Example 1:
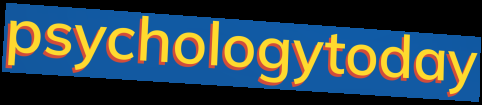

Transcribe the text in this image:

psychologytoday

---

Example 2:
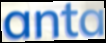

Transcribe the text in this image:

anta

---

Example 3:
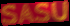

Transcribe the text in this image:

SASU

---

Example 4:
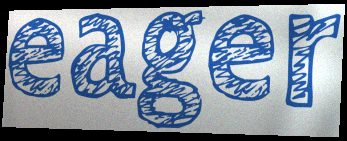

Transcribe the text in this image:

eager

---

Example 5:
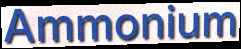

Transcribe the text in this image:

Ammonium